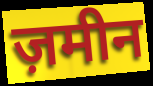
ज़मीन